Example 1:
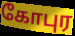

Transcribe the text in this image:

கோபுர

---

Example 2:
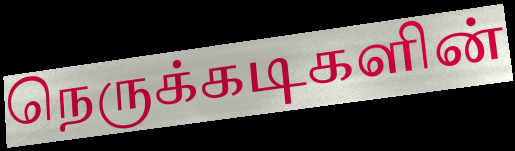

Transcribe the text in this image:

நெருக்கடிகளின்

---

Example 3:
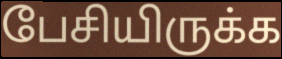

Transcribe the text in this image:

பேசியிருக்க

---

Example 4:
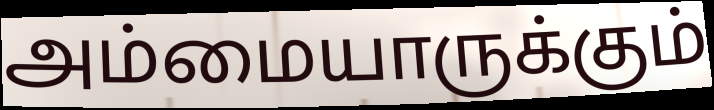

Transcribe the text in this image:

அம்மையாருக்கும்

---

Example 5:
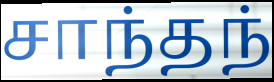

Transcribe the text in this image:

சாந்தந்